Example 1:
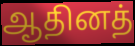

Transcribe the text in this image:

ஆதினத்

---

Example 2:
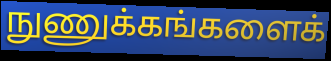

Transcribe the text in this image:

நுணுக்கங்களைக்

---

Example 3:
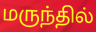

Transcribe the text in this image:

மருந்தில்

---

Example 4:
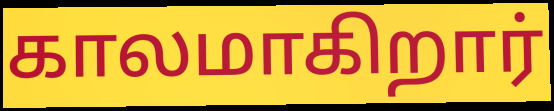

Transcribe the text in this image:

காலமாகிறார்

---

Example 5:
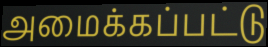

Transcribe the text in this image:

அமைக்கப்பட்டு